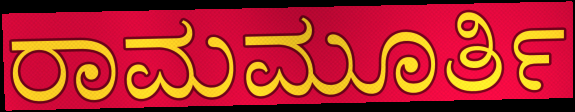
ರಾಮಮೂರ್ತಿ